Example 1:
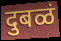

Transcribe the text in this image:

दुबळं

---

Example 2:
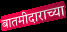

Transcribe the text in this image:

बातमीदाराच्या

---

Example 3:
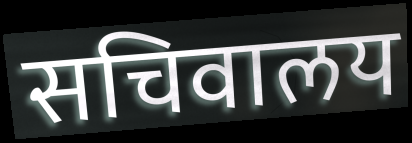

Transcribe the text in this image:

सचिवालय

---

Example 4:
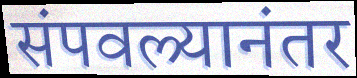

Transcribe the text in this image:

संपवल्यानंतर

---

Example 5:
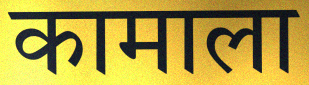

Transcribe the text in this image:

कामाला